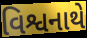
વિશ્વનાથે